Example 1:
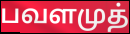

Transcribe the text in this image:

பவளமுத்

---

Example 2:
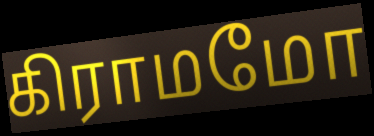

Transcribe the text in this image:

கிராமமோ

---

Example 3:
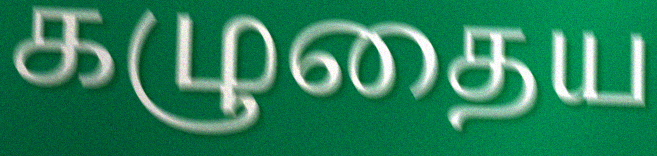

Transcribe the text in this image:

கழுதைய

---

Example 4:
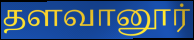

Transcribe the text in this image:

தளவானூர்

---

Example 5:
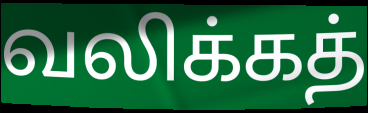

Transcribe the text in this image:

வலிக்கத்